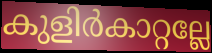
കുളിർകാറ്റല്ലേ